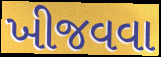
ખીજવવા